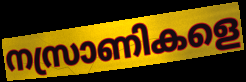
നസ്രാണികളെ